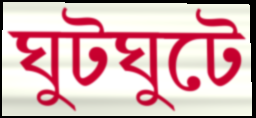
ঘুটঘুটে